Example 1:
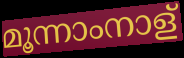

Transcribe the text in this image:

മൂന്നാംനാള്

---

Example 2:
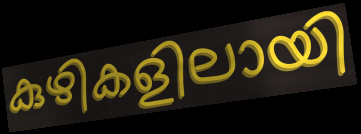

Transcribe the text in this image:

കുഴികളിലായി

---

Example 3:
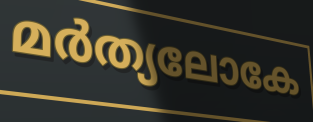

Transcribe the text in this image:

മർത്യലോകേ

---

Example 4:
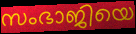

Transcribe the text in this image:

സംഭാജിയെ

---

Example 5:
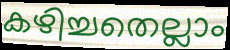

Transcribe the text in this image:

കഴിച്ചതെല്ലാം